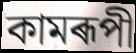
কামৰূপী